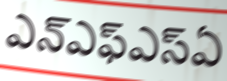
ఎన్ఎఫ్ఎస్ఏ